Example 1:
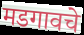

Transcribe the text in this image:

मडगावचे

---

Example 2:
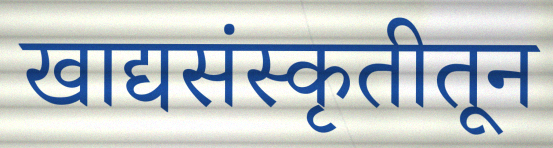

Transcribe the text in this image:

खाद्यसंस्कृतीतून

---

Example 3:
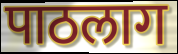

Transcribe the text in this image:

पाठलाग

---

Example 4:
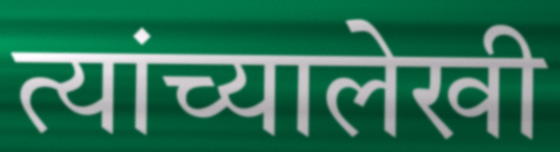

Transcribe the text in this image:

त्यांच्यालेखी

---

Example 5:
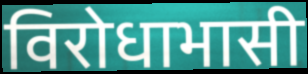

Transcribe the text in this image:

विरोधाभासी